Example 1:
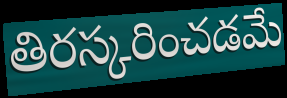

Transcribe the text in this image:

తిరస్కరించడమే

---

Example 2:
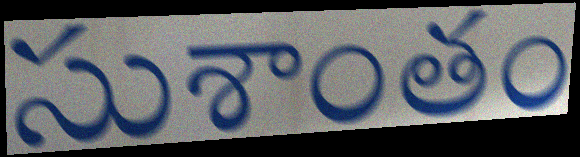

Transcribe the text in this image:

సుశాంతం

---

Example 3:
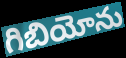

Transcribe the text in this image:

గిబియోను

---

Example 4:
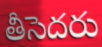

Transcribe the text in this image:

తీసెదరు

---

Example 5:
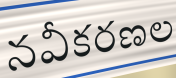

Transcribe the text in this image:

నవీకరణల